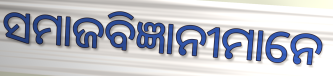
ସମାଜବିଜ୍ଞାନୀମାନେ